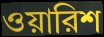
ওয়ারিশ